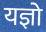
यज्ञो